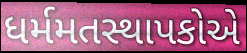
ધર્મમતસ્થાપકોએ